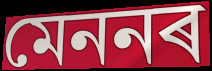
মেননৰ